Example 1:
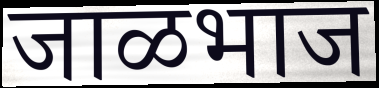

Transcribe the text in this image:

जाळभाज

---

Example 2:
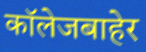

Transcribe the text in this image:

कॉलेजबाहेर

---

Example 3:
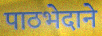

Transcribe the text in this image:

पाठभेदाने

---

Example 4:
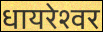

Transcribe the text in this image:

धायरेश्वर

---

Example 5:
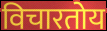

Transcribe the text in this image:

विचारतोय